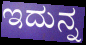
ಇದುನ್ನ